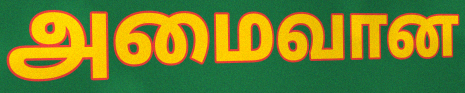
அமைவான